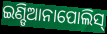
ଇଣ୍ଡିଆନାପୋଲିସ୍